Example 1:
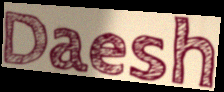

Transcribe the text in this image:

Daesh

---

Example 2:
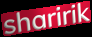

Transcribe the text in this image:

sharirik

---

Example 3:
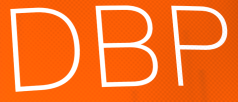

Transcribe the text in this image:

DBP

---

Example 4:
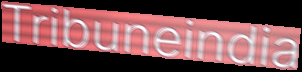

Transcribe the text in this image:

Tribuneindia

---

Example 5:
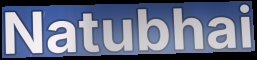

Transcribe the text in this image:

Natubhai